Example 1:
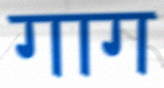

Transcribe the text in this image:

गाग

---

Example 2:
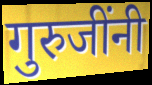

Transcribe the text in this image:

गुरुजींनी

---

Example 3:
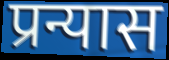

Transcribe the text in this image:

प्रन्यास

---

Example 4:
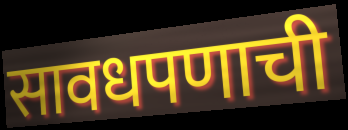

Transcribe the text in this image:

सावधपणाची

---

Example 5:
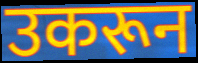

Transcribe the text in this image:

उकरून